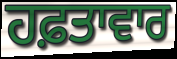
ਹਫ਼ਤਾਵਾਰ